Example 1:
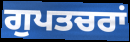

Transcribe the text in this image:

ਗੁਪਤਚਰਾਂ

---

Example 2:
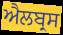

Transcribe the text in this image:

ਐਲਬ੍ਰਸ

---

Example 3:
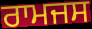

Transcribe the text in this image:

ਰਾਮਜਸ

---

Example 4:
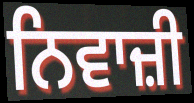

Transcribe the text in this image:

ਨਿਵਾਜ਼ੀ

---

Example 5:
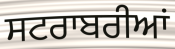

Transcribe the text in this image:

ਸਟਰਾਬਰੀਆਂ